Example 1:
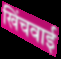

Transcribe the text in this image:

खिंचवाई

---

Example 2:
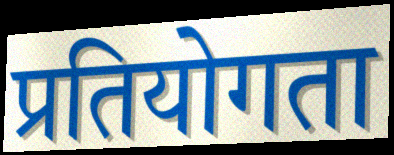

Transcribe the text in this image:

प्रतियोगता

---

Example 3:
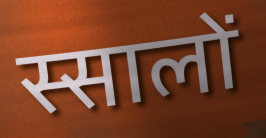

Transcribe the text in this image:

स्सालों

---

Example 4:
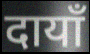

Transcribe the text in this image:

दायाँ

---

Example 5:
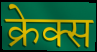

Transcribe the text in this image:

क्रेक्स